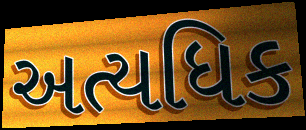
અત્યધિક